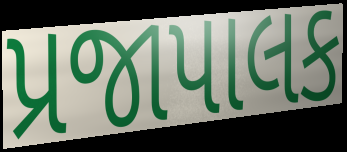
પ્રજાપાલક